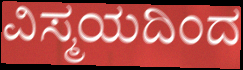
ವಿಸ್ಮಯದಿಂದ